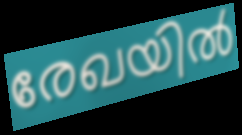
രേഖയിൽ